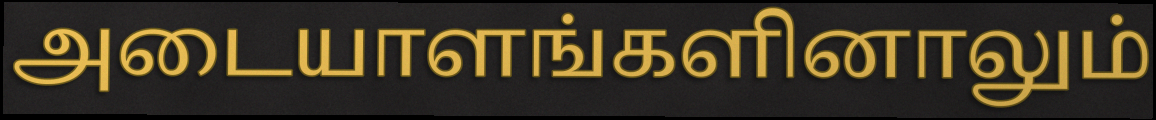
அடையாளங்களினாலும்